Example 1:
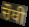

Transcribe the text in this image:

ਚੌਥੀ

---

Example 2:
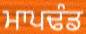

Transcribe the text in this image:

ਮਾਪਢੰਡ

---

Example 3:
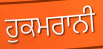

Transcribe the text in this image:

ਹੁਕਮਰਾਨੀ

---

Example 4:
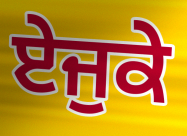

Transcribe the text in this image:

ਏਜੁਕੇ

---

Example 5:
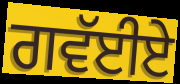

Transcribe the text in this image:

ਗਵੱਈਏ